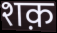
शक़